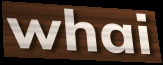
whai